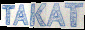
TAKAT